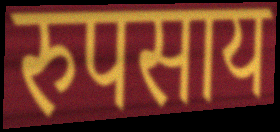
रुपसाय